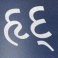
હૃદ્